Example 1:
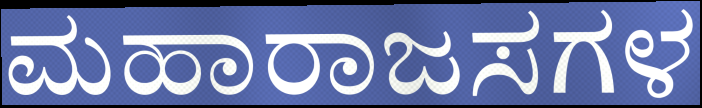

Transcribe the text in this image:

ಮಹಾರಾಜಸಗಳ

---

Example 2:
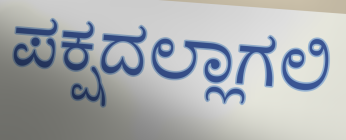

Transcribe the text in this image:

ಪಕ್ಷದಲ್ಲಾಗಲಿ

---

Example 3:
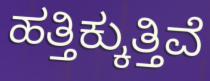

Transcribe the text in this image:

ಹತ್ತಿಕ್ಕುತ್ತಿವೆ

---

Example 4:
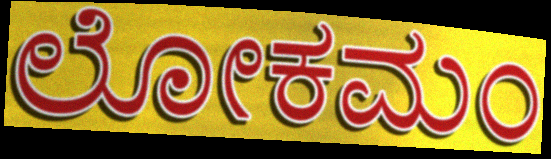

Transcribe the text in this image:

ಲೋಕಮಂ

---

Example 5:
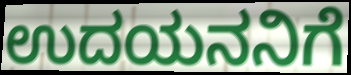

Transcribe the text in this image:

ಉದಯನನಿಗೆ